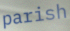
parish